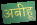
अबीहू